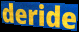
deride